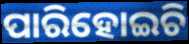
ପାରିହୋଇଚି